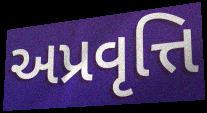
અપ્રવૃત્તિ